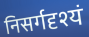
निसर्गदृश्यं